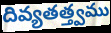
దివ్యతత్త్వము